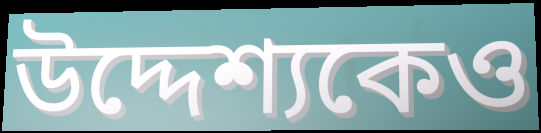
উদ্দেশ্যকেও